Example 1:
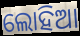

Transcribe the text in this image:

ଲୋହିଆ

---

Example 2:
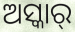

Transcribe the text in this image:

ଅସ୍କାର୍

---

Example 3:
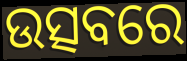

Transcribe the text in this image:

ଉତ୍ସବରେ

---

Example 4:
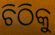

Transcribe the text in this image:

ଚିଠିକୁ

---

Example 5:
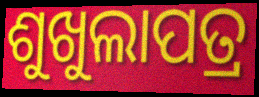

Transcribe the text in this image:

ଶୁଖୁଲାପତ୍ର